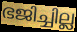
ഭജിച്ചില്ല